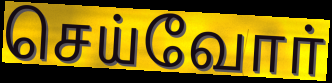
செய்வோர்